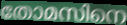
തോമസിനെ